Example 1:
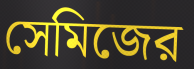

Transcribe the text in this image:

সেমিজের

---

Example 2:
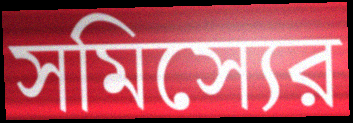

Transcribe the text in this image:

সমিস্যের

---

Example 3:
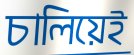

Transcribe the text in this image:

চালিয়েই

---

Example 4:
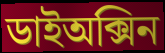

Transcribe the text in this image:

ডাইঅক্সিন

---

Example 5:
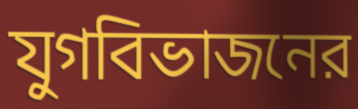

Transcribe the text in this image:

যুগবিভাজনের